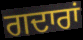
ਗਦਾਰਾਂ